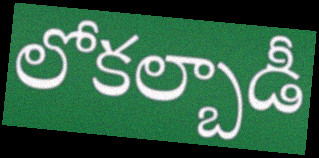
లోకల్బాడీ